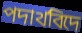
পদাৰ্থবিদে